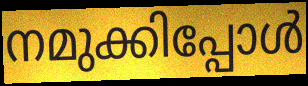
നമുക്കിപ്പോൾ